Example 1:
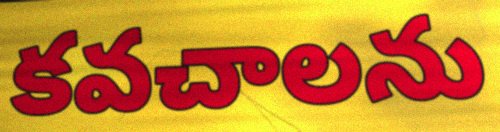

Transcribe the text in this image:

కవచాలను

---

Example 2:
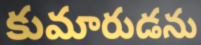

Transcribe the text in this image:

కుమారుడను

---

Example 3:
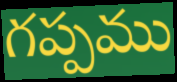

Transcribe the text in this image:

గప్పము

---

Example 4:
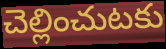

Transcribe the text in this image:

చెల్లించుటకు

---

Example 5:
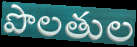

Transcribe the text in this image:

పొలతుల